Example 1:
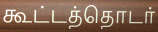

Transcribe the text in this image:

கூட்டத்தொடர்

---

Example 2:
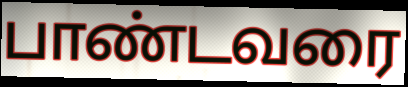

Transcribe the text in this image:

பாண்டவரை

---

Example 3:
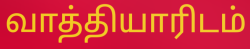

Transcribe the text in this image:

வாத்தியாரிடம்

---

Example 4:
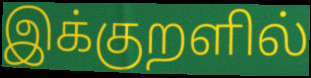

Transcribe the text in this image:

இக்குறளில்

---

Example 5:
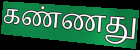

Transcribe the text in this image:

கண்ணது